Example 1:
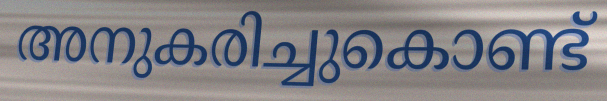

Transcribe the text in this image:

അനുകരിച്ചുകൊണ്ട്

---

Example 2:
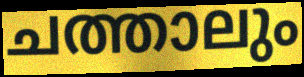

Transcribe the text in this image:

ചത്താലും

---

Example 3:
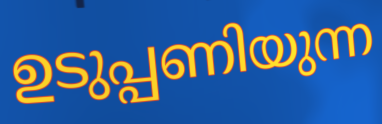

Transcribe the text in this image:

ഉടുപ്പണിയുന്ന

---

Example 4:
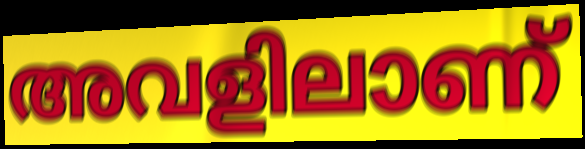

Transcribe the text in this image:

അവളിലാണ്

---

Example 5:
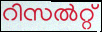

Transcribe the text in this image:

റിസൽറ്റ്